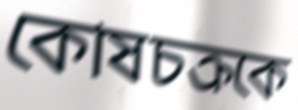
কোষচক্রকে